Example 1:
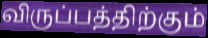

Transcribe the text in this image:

விருப்பத்திற்கும்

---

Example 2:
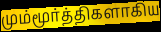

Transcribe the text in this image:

மும்மூர்த்திகளாகிய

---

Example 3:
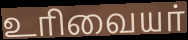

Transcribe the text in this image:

உரிவையர்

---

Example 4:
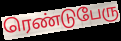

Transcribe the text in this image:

ரெண்டுபேரு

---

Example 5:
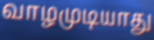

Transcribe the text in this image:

வாழமுடியாது